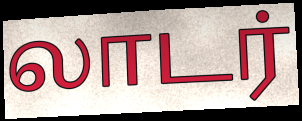
லாடர்